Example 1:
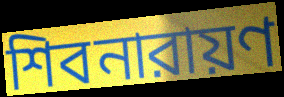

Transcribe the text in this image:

শিবনারায়ণ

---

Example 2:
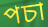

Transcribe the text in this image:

পচা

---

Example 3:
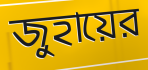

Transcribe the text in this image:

জুহায়ের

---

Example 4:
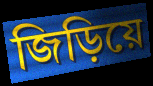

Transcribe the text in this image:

জিড়িয়ে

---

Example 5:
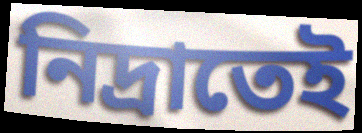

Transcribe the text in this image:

নিদ্রাতেই